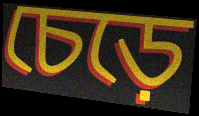
চেড়ে